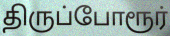
திருப்போரூர்